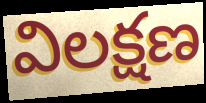
విలక్షణ